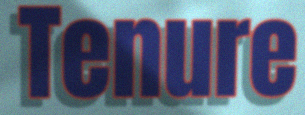
Tenure